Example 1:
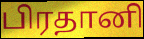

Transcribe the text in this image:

பிரதானி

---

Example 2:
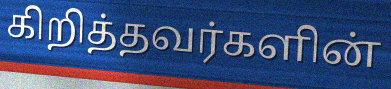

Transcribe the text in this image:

கிறித்தவர்களின்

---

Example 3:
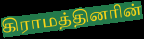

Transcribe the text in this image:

கிராமத்தினரின்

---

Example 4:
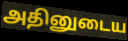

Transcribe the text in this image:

அதினுடைய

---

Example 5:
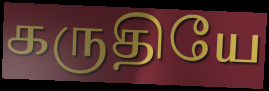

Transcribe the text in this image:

கருதியே